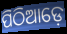
ପିଠିଆଡ଼େ